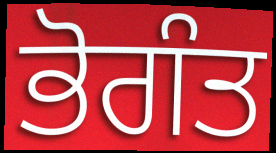
ਭੋਗੰਤ